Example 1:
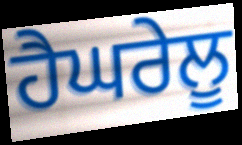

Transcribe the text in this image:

ਹੈਘਰੇਲੂ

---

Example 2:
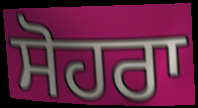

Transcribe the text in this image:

ਸੋਹਰਾ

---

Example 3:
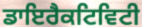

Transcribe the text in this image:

ਡਾਇਰੈਕਟਿਵਿਟੀ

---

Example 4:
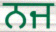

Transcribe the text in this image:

ਨਜ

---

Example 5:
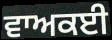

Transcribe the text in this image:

ਵਾਅਕਈ